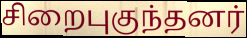
சிறைபுகுந்தனர்